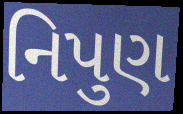
નિપુણ